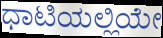
ಧಾಟಿಯಲ್ಲಿಯೇ